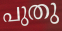
പുതു